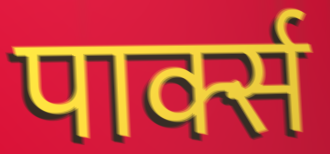
पार्क्स